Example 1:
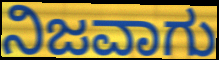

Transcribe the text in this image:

ನಿಜವಾಗು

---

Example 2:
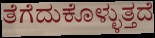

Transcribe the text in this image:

ತೆಗೆದುಕೊಳ್ಳುತ್ತದೆ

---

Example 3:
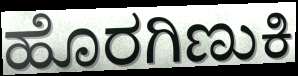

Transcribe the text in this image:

ಹೊರಗಿಣುಕಿ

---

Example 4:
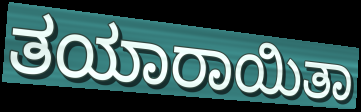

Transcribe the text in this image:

ತಯಾರಾಯಿತಾ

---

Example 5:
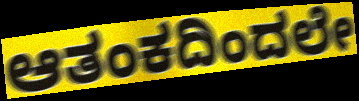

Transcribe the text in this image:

ಆತಂಕದಿಂದಲೇ